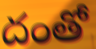
దంతో